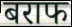
बराफ